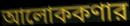
আলোককণার